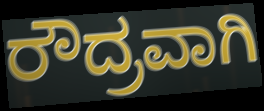
ರೌದ್ರವಾಗಿ